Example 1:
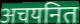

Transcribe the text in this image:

अचयनित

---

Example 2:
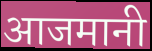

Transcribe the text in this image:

आजमानी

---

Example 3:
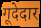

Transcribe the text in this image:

गूदेदार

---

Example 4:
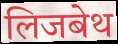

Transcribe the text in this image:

लिजबेथ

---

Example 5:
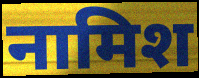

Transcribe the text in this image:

नामिश